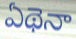
ఏథెనా